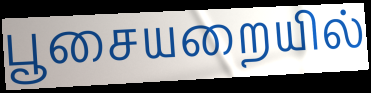
பூசையறையில்